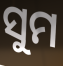
ସୁମ